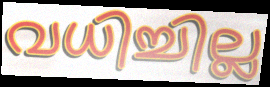
വധിച്ചില്ല